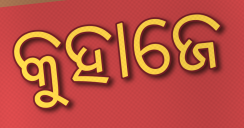
କୁହାଜେ